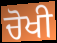
ਚੋਖੀ